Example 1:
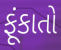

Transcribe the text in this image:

ફૂંકાતો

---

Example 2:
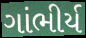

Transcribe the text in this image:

ગાંભીર્ય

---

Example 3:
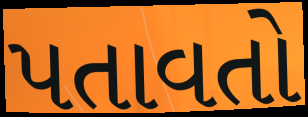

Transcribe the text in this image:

પતાવતો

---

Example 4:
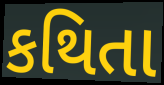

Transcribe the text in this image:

કથિતા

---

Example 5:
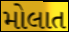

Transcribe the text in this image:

મોલાત